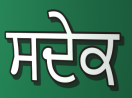
ਸਦੇਕ